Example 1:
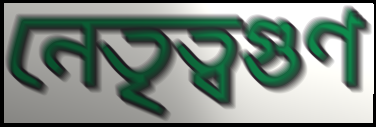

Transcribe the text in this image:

নেতৃত্বগুণ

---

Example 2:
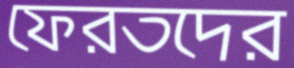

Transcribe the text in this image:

ফেরতদের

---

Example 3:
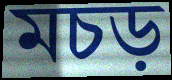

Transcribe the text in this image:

মচড়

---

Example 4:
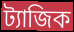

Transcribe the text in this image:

ট্যাজিক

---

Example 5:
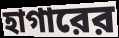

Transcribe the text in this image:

হাগারের